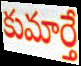
కుమార్తే